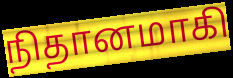
நிதானமாகி